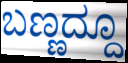
ಬಣ್ಣದ್ದೂ